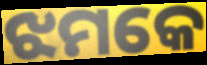
ଝମକେ